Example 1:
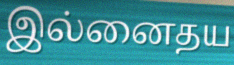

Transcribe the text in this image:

இல்னைதய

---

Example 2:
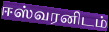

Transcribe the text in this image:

ஈஸ்வரனிடம்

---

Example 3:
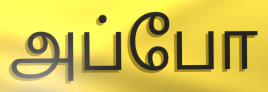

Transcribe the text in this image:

அப்போ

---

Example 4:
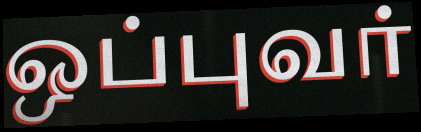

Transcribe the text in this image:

ஒப்புவர்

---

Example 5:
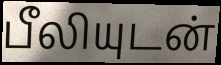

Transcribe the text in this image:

பீலியுடன்